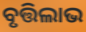
ବୃତ୍ତିଲାଭ